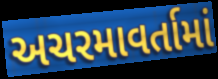
અચરમાવર્તામાં